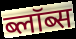
ब्लॉब्स